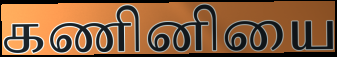
கணினியை